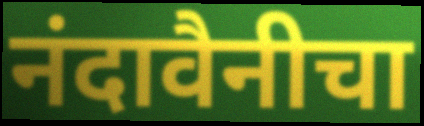
नंदावैनीचा